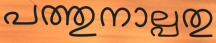
പത്തുനാല്പതു